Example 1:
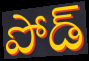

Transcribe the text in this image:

పోడ్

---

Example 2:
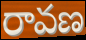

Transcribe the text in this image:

రావణ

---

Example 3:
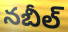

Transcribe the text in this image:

నబీల్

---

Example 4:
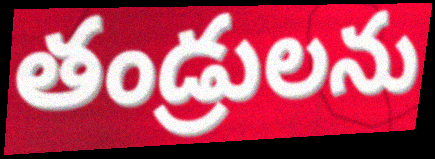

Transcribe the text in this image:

తండ్రులను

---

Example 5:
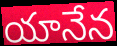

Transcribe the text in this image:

యానేన